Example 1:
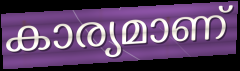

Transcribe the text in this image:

കാര്യമാണ്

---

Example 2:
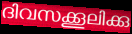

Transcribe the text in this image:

ദിവസക്കൂലിക്കു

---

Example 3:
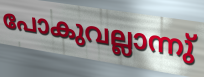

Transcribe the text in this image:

പോകുവല്ലാന്നു്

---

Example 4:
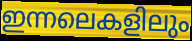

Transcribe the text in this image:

ഇന്നലെകളിലും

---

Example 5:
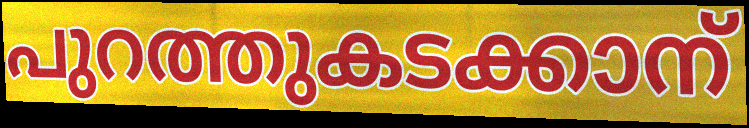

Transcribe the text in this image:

പുറത്തുകടക്കാന്